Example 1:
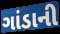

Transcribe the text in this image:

ગાંડાની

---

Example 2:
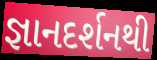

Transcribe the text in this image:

જ્ઞાનદર્શનથી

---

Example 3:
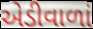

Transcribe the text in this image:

એડીવાળાં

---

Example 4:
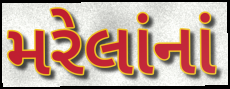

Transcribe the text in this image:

મરેલાંનાં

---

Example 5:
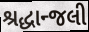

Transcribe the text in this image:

શ્રદ્ધાન્જલી